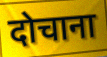
दोचाना